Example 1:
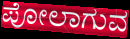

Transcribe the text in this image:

ಪೋಲಾಗುವ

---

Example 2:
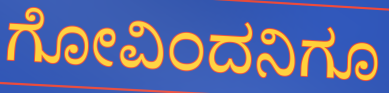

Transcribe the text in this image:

ಗೋವಿಂದನಿಗೂ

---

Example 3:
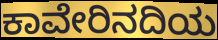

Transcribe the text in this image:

ಕಾವೇರಿನದಿಯ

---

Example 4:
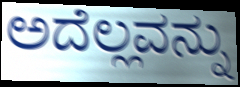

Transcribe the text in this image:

ಅದೆಲ್ಲವನ್ನು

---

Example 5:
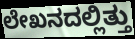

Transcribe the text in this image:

ಲೇಖನದಲ್ಲಿತ್ತು